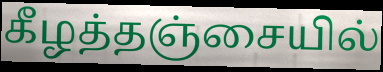
கீழத்தஞ்சையில்